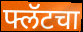
फ्लॅटचा